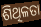
ଶିଥିଳତା